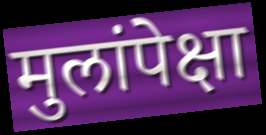
मुलांपेक्षा